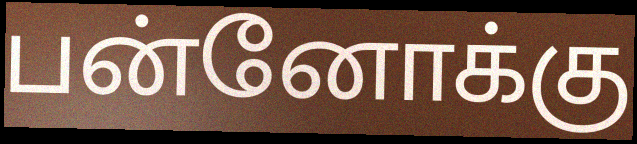
பன்னோக்கு